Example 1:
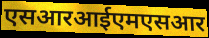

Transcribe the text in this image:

एसआरआईएमएसआर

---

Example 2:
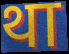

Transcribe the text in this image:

था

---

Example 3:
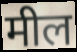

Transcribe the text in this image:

मील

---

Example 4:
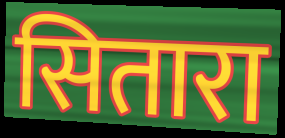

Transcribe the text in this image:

सितारा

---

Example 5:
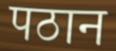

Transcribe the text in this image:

पठान